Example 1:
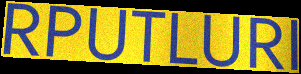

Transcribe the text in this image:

RPUTLURI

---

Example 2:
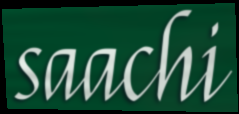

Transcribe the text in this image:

saachi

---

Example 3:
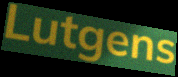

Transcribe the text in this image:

Lutgens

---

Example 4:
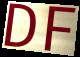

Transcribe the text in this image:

DF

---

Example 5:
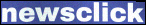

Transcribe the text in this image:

newsclick